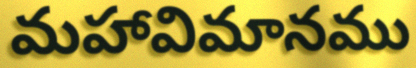
మహావిమానము